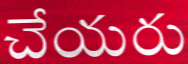
చేయరు